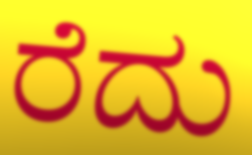
ರೆದು